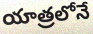
యాత్రలోనే